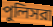
পুলিসরা